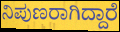
ನಿಪುಣರಾಗಿದ್ದಾರೆ